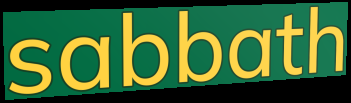
sabbath